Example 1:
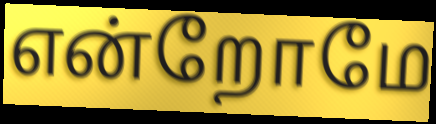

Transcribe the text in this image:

என்றோமே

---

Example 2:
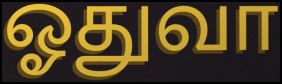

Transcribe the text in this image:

ஓதுவா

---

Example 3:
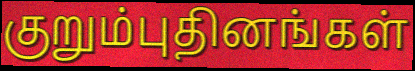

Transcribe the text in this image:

குறும்புதினங்கள்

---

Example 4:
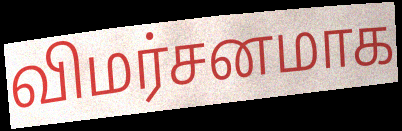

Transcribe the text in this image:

விமர்சனமாக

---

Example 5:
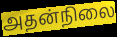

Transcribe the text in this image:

அதன்நிலை